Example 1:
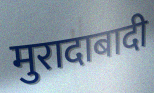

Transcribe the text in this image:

मुरादाबादी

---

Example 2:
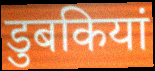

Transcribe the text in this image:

डुबकियां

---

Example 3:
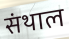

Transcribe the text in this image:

संथाल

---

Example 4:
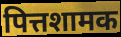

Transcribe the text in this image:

पित्तशामक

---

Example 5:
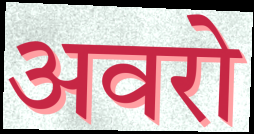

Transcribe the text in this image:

अवरो